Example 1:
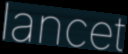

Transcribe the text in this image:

lancet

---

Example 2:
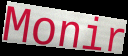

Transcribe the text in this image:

Monir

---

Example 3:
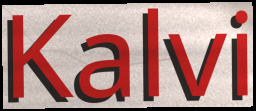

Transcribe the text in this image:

Kalvi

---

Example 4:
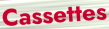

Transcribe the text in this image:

Cassettes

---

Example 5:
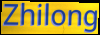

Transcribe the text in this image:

Zhilong